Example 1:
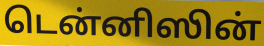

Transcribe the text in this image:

டென்னிஸின்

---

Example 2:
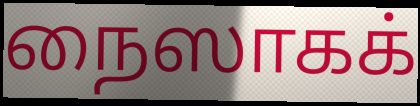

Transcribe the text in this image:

நைஸாகக்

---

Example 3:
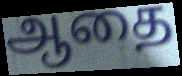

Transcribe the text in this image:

ஆதை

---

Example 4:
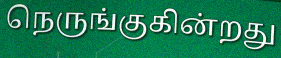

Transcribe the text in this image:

நெருங்குகின்றது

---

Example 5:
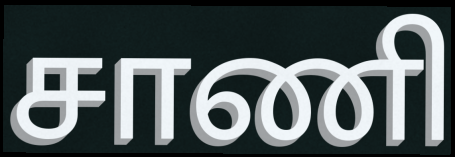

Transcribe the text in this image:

சாணி